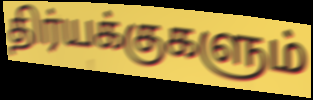
திர்யக்குகளும்